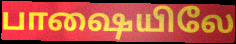
பாஷையிலே